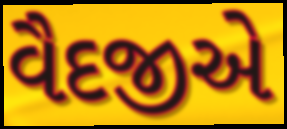
વૈદજીએ